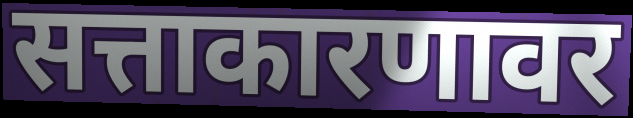
सत्ताकारणावर